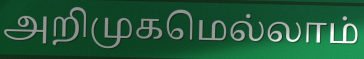
அறிமுகமெல்லாம்